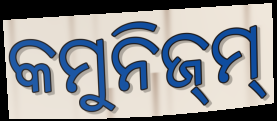
କମୁନିଜ୍‌ମ୍